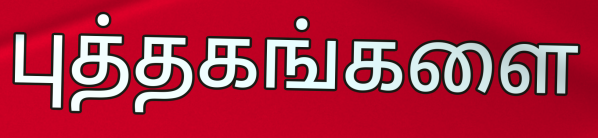
புத்தகங்களை